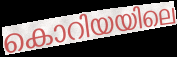
കൊറിയയിലെ